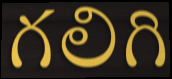
గలిగి